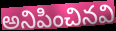
అనిపించినవి